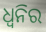
ଧ୍ବନିର